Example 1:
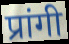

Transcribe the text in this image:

प्रांगी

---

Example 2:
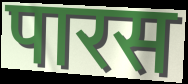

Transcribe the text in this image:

पारस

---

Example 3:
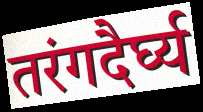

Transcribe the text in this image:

तरंगदैर्घ्य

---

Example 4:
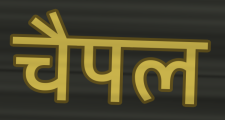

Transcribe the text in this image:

चैपल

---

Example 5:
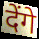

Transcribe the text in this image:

देंगे